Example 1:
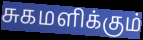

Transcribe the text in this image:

சுகமளிக்கும்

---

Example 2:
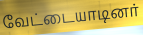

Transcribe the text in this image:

வேட்டையாடினர்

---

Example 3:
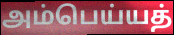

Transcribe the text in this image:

அம்பெய்யத்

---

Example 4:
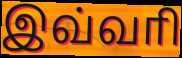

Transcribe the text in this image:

இவ்வரி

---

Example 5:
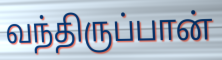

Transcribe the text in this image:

வந்திருப்பான்